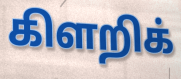
கிளறிக்